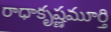
రాధాకృష్ణమూర్తి